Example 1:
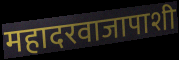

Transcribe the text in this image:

महादरवाजापाशी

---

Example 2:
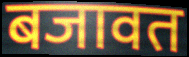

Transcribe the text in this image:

बजावत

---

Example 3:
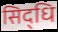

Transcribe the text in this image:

सिद्धि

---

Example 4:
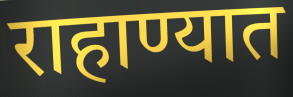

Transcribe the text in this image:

राहाण्यात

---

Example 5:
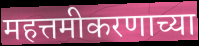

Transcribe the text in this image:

महत्तमीकरणाच्या